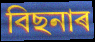
বিছনাৰ